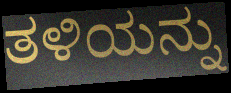
ತಳಿಯನ್ನು